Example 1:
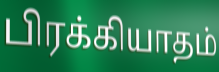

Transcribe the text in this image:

பிரக்கியாதம்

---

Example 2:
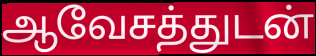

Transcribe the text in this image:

ஆவேசத்துடன்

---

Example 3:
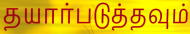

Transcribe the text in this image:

தயார்படுத்தவும்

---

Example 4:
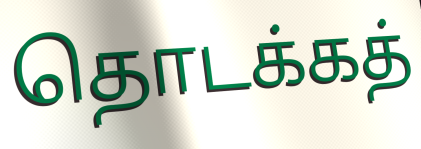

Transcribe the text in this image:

தொடக்கத்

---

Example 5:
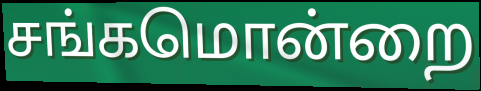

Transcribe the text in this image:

சங்கமொன்றை